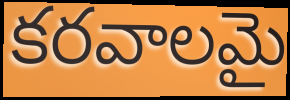
కరవాలమై